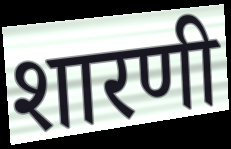
शारणी